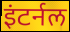
इंटर्नल